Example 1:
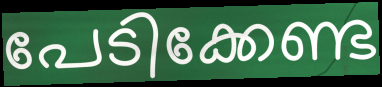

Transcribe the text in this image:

പേടിക്കേണ്ട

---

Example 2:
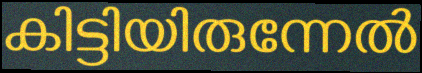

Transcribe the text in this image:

കിട്ടിയിരുന്നേൽ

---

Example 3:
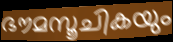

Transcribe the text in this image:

ഭൗമസൂചികയും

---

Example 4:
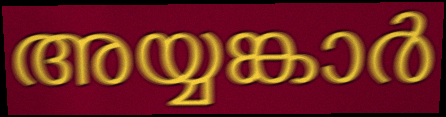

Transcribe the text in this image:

അയ്യങ്കാർ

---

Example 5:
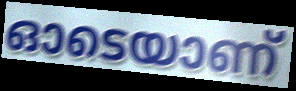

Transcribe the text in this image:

ഓടെയാണ്